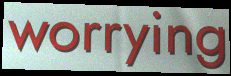
worrying